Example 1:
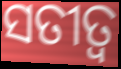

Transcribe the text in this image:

ସତୀତ୍ବ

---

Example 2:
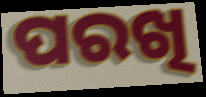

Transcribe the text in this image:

ପରଖି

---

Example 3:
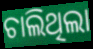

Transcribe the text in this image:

ଚାଲିଥିଲା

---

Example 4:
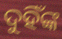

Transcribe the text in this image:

ଦୁହିଁଙ୍କ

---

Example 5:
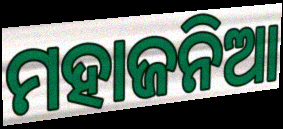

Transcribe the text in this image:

ମହାଜନିଆ